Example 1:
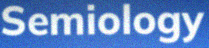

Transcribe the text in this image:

Semiology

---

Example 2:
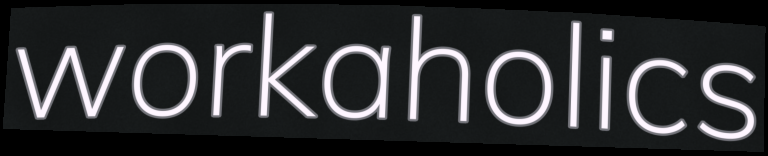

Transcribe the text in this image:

workaholics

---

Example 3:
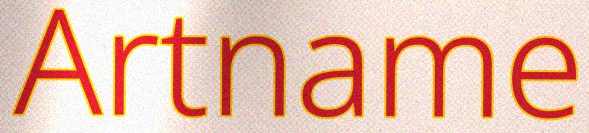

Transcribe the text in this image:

Artname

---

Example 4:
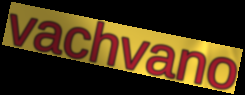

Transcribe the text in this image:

vachvano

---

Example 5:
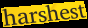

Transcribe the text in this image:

harshest